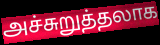
அச்சுறுத்தலாக